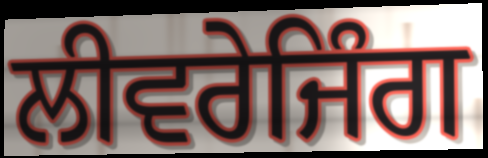
ਲੀਵਰੇਜਿੰਗ